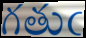
గతుఁ